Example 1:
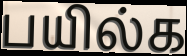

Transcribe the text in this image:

பயில்க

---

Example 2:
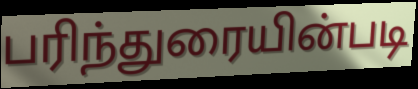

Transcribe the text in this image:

பரிந்துரையின்படி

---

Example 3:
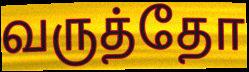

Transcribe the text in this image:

வருத்தோ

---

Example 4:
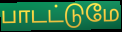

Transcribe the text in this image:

பாடட்டுமே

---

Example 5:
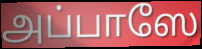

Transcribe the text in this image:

அப்பாஸே